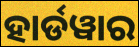
ହାର୍ଡୱାର